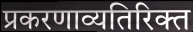
प्रकरणाव्यतिरिक्त